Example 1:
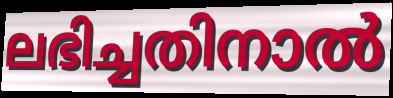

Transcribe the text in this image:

ലഭിച്ചതിനാൽ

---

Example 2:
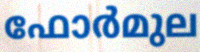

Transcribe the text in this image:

ഫോർമുല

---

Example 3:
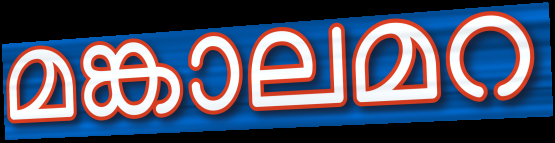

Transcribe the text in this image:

മങ്കാലമറ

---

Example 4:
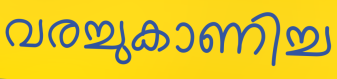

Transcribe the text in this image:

വരച്ചുകാണിച്ച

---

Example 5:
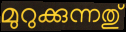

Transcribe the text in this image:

മുറുക്കുന്നതു്